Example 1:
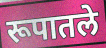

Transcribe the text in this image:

रूपातले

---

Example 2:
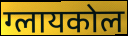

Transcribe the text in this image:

ग्लायकोल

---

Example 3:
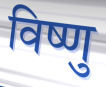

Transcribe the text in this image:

विष्णु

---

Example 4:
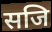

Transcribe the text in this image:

सजि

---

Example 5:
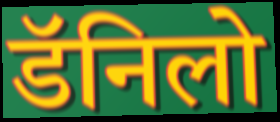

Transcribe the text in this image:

डॅनिलो